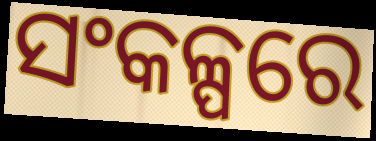
ସଂକଳ୍ପରେ